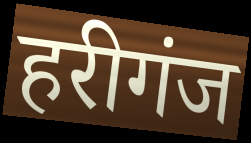
हरीगंज